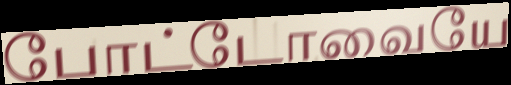
போட்டோவையே